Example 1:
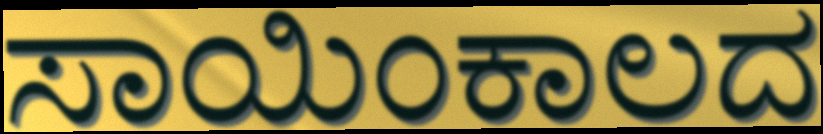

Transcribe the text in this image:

ಸಾಯಿಂಕಾಲದ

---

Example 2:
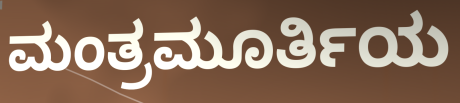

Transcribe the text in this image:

ಮಂತ್ರಮೂರ್ತಿಯ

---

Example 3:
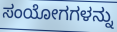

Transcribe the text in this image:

ಸಂಯೋಗಗಳನ್ನು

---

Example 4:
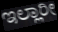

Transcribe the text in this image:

ಇಲ್ಲಾರೀ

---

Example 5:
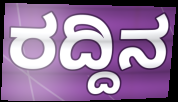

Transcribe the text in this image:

ರದ್ದಿನ